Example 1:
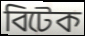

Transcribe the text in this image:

বিটেক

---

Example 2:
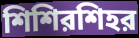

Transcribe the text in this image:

শিশিরশিহর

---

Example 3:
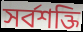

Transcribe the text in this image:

সর্বশক্তি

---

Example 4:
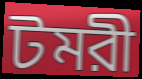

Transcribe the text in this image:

টমরী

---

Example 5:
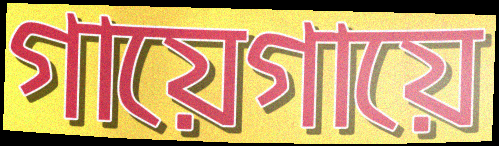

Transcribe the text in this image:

গায়েগায়ে